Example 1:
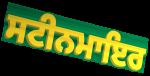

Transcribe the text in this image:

ਸਟੀਨਮਾਇਰ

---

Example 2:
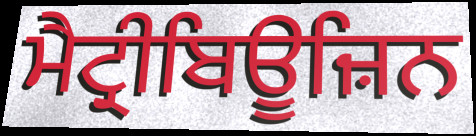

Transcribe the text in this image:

ਮੈਟ੍ਰੀਬਿਊਜ਼ਿਨ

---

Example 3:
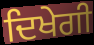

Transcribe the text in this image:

ਦਿਖੇਗੀ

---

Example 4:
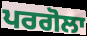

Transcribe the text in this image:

ਪਰਗੋਲਾ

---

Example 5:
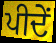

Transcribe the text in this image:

ਪੀਦੇਂ